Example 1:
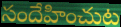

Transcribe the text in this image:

సందేహించుట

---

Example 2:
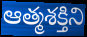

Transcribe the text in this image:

ఆత్మశక్తిని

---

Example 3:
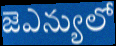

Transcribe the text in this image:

జెఎన్యులో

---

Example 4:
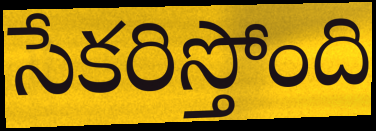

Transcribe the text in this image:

సేకరిస్తోంది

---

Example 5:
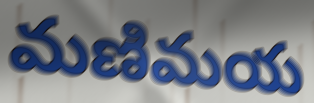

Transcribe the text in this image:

మణిమయ